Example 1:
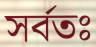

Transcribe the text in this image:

সর্বতঃ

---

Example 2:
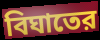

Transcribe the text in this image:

বিঘাতের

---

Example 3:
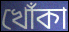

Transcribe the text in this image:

খোঁকা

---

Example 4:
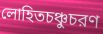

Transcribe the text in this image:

লোহিতচঞ্চুচরণ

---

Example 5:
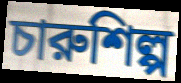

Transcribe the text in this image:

চারুশিল্প